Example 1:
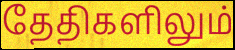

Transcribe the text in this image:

தேதிகளிலும்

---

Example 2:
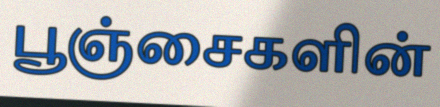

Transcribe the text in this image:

பூஞ்சைகளின்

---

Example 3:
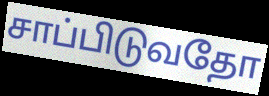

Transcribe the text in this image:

சாப்பிடுவதோ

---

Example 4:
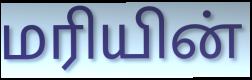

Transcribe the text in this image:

மரியின்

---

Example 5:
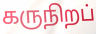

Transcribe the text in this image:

கருநிறப்